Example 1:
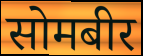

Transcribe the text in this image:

सोमबीर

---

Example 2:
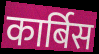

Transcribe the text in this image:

कार्बिस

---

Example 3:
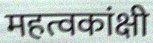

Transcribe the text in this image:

महत्वकांक्षी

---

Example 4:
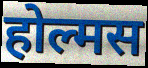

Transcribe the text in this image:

होल्मस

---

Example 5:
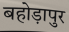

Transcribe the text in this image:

बहोड़ापुर